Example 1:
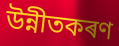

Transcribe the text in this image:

উন্নীতকৰণ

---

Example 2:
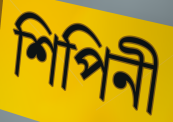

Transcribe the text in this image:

শিপিনী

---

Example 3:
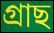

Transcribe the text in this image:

গ্ৰাছ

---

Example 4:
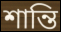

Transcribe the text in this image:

শান্তি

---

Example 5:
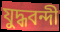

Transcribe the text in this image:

যুদ্ধবন্দী